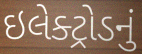
ઇલેક્ટ્રોડનું